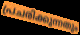
പ്രചരിക്കുന്നതും